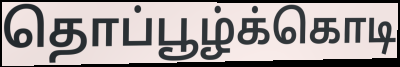
தொப்பூழ்க்கொடி